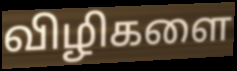
விழிகளை